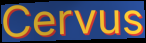
Cervus